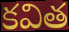
కవిత